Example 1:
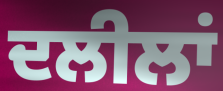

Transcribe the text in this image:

ਦਲੀਲਾਂ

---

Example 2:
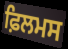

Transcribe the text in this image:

ਫ਼ਿਲਮਸ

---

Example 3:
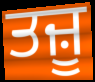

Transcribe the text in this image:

ਤਜ਼ੂ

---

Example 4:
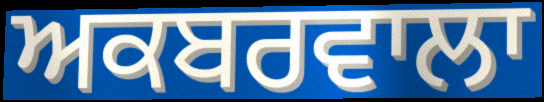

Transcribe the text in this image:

ਅਕਬਰਵਾਲਾ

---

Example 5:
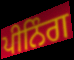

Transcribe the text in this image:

ਪੀਨਿੰਗ